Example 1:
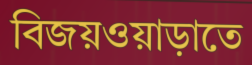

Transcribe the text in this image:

বিজয়ওয়াড়াতে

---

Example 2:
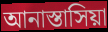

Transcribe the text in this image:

আনাস্তাসিয়া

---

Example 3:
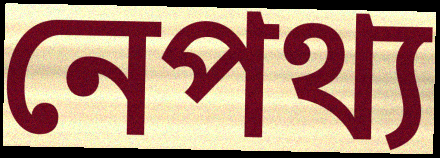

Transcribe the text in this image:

নেপথ্য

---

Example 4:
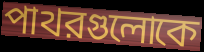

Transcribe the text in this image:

পাথরগুলোকে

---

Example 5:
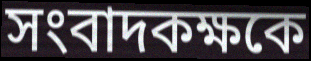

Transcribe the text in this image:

সংবাদকক্ষকে